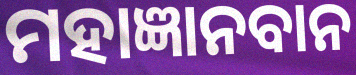
ମହାଜ୍ଞାନବାନ